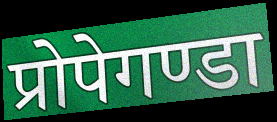
प्रोपेगण्डा